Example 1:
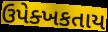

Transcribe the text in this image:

ઉપેક્ખકતાય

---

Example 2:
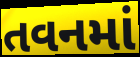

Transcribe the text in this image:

તવનમાં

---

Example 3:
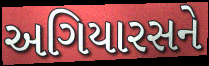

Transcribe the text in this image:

અગિયારસને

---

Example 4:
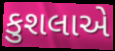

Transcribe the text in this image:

કુશલાએ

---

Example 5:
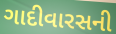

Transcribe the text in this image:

ગાદીવારસની